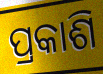
ପ୍ରକାଶି